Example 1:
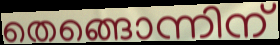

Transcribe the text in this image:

തെങ്ങൊന്നിന്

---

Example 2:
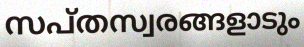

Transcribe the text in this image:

സപ്തസ്വരങ്ങളാടും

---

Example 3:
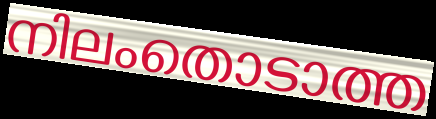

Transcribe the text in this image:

നിലംതൊടാത്ത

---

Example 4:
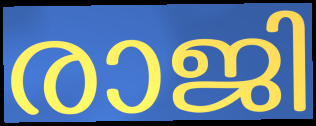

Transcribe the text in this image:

രാജി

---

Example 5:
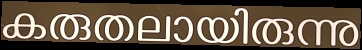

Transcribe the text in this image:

കരുതലായിരുന്നു